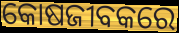
କୋଷଜୀବକରେ